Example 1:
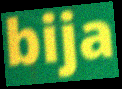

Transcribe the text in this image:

bija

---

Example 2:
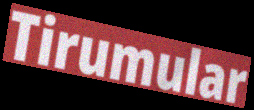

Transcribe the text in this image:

Tirumular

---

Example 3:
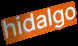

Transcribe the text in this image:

hidalgo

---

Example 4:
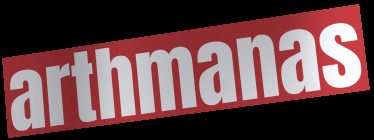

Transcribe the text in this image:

arthmanas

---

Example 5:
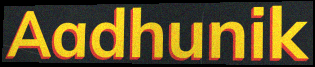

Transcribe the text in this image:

Aadhunik